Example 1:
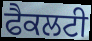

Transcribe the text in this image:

ਫੈਕਲਟੀ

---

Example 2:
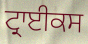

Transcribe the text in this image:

ਟ੍ਰਾਈਕਸ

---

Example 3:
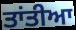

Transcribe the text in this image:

ਤਾਂਤੀਆ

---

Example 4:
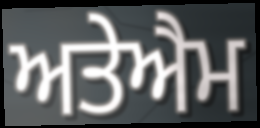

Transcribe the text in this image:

ਅਤੇਐਮ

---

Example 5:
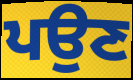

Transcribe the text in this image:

ਪਉਣ